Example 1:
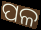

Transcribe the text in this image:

ପଳ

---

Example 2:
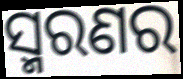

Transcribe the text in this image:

ସ୍ମରଣର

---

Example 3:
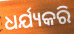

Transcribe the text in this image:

ଧର୍ଯ୍ୟକରି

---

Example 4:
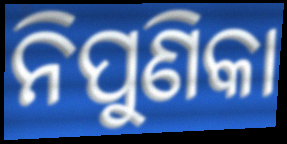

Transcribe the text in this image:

ନିପୁଣିକା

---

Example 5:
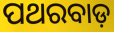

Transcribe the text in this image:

ପଥରବାଡ଼